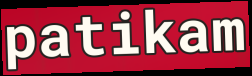
patikam